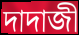
দাদাজী